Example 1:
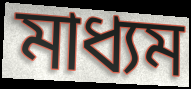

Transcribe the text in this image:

মাধ্যম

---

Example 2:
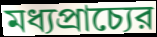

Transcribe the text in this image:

মধ্যপ্রাচ্যের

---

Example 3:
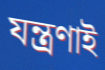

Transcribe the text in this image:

যন্ত্রণাই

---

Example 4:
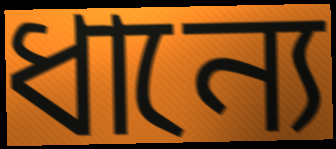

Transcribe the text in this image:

ধান্যে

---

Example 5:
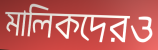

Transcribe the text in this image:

মালিকদেরও